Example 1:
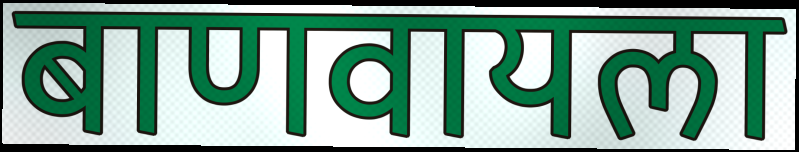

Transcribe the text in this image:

बाणवायला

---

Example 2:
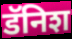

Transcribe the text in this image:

डॅनिश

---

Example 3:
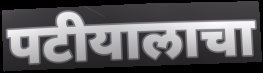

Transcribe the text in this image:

पटीयालाचा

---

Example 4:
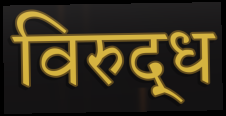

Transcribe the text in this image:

विरुद्ध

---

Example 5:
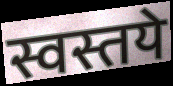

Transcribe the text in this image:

स्वस्तये